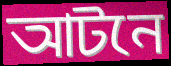
আটনে